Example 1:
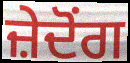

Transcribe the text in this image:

ਜ਼ੇਦੋਂਗ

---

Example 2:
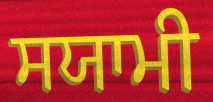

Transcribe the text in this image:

ਸਯਾਮੀ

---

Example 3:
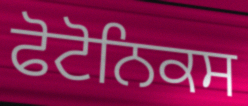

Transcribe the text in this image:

ਫੋਟੋਨਿਕਸ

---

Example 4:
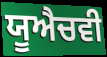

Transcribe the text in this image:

ਯੂਐਚਵੀ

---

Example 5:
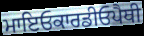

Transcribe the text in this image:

ਮਾਇਓਕਾਰਡੀਓਪੈਥੀ